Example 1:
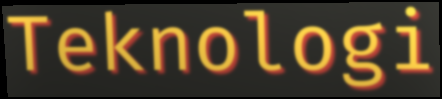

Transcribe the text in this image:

Teknologi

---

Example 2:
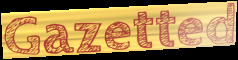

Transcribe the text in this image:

Gazetted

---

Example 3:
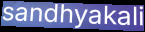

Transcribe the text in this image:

sandhyakali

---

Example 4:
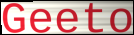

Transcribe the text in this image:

Geeto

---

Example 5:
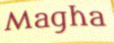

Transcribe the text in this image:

Magha